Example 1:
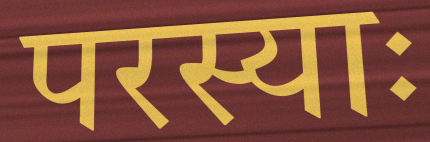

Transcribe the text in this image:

परस्याः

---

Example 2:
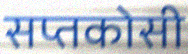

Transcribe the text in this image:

सप्तकोसी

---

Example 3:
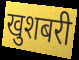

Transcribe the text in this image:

खुशबरी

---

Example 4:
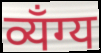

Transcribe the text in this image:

व्यँग्य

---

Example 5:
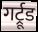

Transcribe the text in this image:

गर्ट्रूड